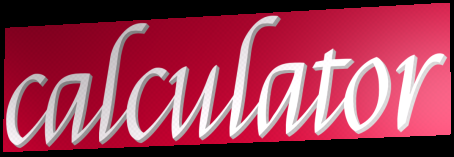
calculator